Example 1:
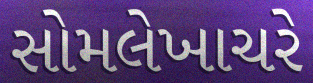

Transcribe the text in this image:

સોમલેખાચરે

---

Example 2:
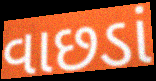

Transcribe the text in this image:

વાછડાં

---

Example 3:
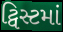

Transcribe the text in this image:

ટ્વિસ્ટમાં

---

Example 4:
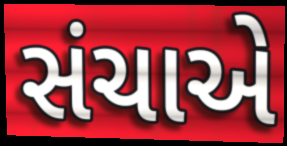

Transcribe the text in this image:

સંચાએ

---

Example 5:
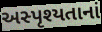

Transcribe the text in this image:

અસ્પૃશ્યતાનાં